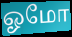
ஓமோ